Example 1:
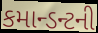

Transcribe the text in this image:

કમાન્ડન્ટની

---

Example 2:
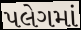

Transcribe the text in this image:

પલેગમાં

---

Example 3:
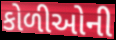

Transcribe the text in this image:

કોળીઓની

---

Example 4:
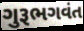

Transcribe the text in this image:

ગુરૂભગવંત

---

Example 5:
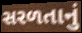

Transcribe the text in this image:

સરળતાનું